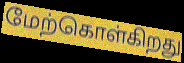
மேற்கொள்கிறது